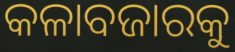
କଳାବଜାରକୁ